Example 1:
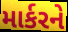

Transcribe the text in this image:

માર્કરને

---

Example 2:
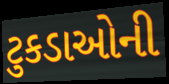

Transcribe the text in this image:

ટુકડાઓની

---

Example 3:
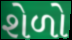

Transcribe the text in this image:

શેળો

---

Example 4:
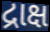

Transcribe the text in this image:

દ્રાક્ષ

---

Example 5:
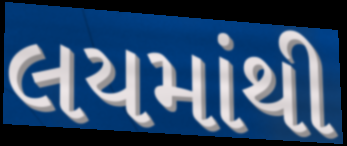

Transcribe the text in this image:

લયમાંથી